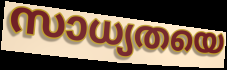
സാധ്യതയെ